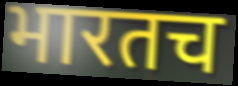
भारतच